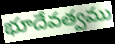
భూదేవత్వము